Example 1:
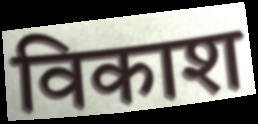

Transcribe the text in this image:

विकाश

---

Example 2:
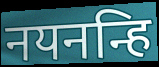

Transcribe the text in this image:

नयनन्हि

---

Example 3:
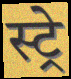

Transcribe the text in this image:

स्ट्रे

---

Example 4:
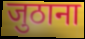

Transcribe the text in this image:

जुठाना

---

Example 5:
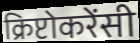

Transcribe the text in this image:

क्रिप्टोकरेंसी